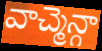
వాచ్మెన్గా